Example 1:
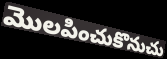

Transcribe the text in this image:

మొలపించుకొనుచు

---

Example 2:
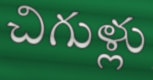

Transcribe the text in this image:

చిగుళ్లు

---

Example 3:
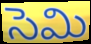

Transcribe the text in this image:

సెమి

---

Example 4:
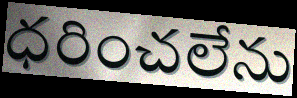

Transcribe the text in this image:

ధరించలేను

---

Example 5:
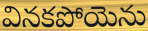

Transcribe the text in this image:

వినకపోయెను